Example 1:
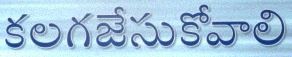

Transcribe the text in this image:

కలగజేసుకోవాలి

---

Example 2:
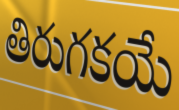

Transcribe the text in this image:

తిరుగకయే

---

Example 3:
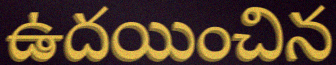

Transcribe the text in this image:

ఉదయించిన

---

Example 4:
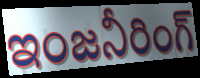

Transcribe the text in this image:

ఇంజనీరింగ్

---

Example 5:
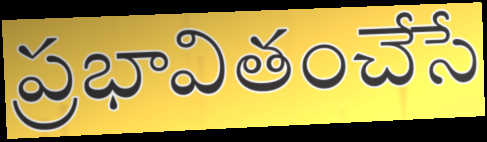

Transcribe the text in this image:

ప్రభావితంచేసే